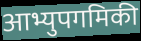
आभ्युपगमिकी